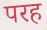
परह